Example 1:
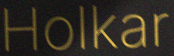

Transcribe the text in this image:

Holkar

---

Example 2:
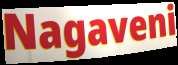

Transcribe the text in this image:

Nagaveni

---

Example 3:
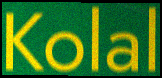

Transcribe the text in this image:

Kolal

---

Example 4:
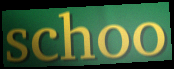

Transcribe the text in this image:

schoo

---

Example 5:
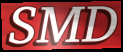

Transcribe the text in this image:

SMD